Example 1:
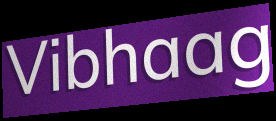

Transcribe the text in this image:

Vibhaag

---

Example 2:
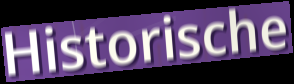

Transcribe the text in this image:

Historische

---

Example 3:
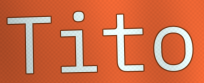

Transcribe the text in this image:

Tito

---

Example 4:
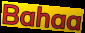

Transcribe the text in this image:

Bahaa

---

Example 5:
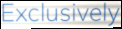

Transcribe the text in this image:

Exclusively